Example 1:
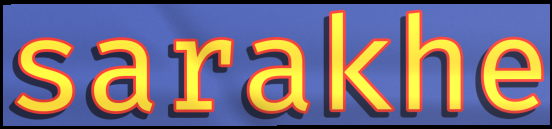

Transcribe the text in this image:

sarakhe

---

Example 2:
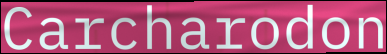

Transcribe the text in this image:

Carcharodon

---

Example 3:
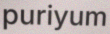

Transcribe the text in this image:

puriyum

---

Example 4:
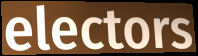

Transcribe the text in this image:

electors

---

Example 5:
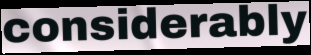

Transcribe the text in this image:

considerably